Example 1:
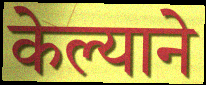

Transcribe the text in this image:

केल्‍याने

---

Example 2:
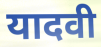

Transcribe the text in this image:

यादवी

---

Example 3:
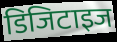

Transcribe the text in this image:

डिजिटाइज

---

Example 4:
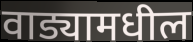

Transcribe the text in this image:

वाड्यामधील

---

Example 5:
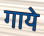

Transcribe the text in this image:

गाये